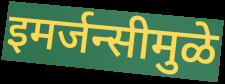
इमर्जन्सीमुळे